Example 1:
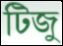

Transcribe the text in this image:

টিজু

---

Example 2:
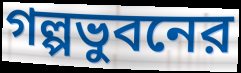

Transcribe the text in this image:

গল্পভুবনের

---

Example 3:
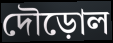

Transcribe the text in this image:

দৌড়োল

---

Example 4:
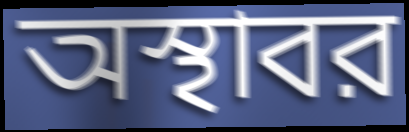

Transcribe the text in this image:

অস্থাবর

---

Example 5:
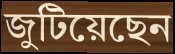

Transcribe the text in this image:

জুটিয়েছেন